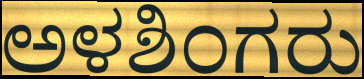
ಅಳಶಿಂಗರು